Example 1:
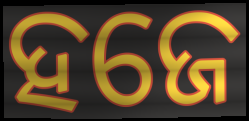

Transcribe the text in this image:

ହଜେ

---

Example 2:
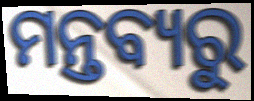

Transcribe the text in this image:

ମନ୍ତବ୍ୟରୁ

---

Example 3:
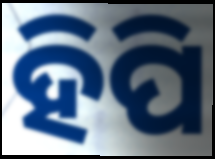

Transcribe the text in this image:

ହିପି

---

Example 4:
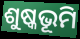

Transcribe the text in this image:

ଶୁଷ୍କଭୂମି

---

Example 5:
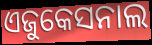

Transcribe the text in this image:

ଏଜୁକେସନାଲ